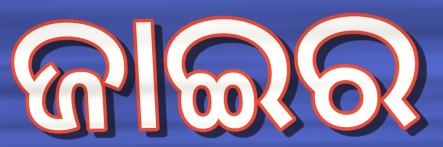
ଜାଇର